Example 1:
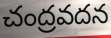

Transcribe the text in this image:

చంద్రవదన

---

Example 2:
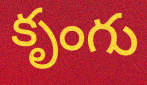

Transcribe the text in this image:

కృంగు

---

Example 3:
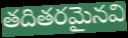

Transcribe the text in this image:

తదితరమైనవి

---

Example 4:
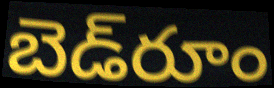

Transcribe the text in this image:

బెడ్‌రూం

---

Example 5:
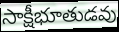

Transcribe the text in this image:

సాక్షీభూతుడవు